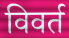
विवर्त